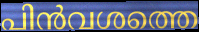
പിൻവശത്തെ